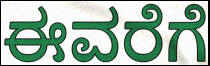
ಈವರೆಗೆ